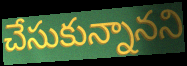
చేసుకున్నానని